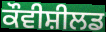
ਕੌਵੀਸ਼ੀਲਡ